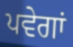
ਪਵੇਗਾਂ